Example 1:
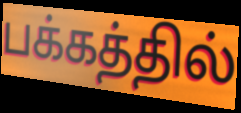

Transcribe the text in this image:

பக்கத்தில்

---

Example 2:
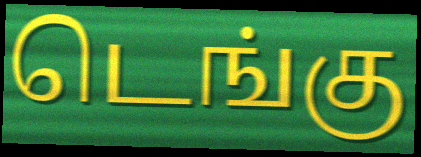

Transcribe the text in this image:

டெங்கு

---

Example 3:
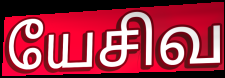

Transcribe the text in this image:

யேசிவ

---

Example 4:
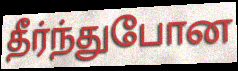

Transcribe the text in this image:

தீர்ந்துபோன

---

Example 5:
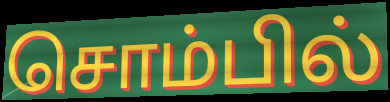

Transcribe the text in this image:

சொம்பில்